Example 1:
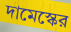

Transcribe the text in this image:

দামেস্কের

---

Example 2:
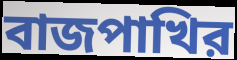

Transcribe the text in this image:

বাজপাখির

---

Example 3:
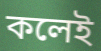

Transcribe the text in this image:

কলেই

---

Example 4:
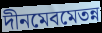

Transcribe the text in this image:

দীনমেবমেতন্ন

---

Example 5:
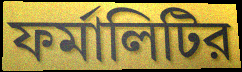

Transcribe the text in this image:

ফর্মালিটির